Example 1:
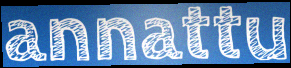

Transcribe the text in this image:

annattu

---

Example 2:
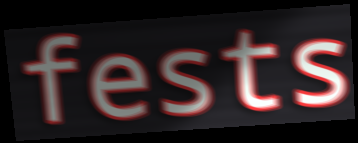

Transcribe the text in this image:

fests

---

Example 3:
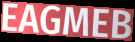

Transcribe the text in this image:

EAGMEB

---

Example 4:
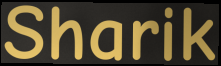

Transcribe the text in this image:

Sharik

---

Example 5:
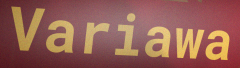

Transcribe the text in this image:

Variawa